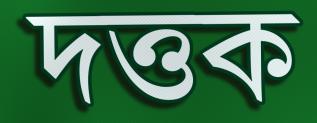
দত্তক